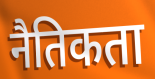
नैतिकता